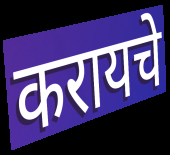
करायचे